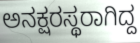
ಅನಕ್ಷರಸ್ಥರಾಗಿದ್ದ